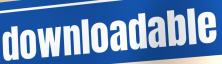
downloadable